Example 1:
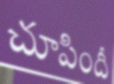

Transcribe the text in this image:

చూపిందీ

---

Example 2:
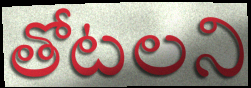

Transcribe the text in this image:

తోటలని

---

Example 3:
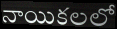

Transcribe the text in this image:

నాయికలలో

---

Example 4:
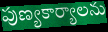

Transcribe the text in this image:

పుణ్యకార్యాలను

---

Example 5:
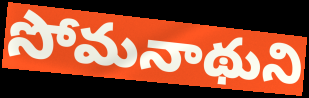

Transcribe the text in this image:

సోమనాథుని